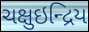
ચક્ષુઇન્દ્રિય